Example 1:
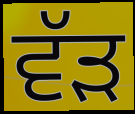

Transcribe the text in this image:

ਵੱੜ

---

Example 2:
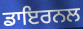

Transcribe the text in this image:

ਡਾਇਰਨਲ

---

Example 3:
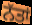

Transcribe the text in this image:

ਨੱਤਾਂ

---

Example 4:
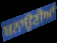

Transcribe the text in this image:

ਬਨਾਉਣੀਆਂ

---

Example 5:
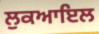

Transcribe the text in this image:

ਲੁਕਆਇਲ